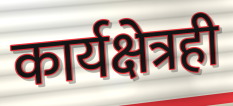
कार्यक्षेत्रही